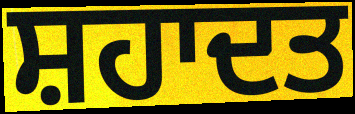
ਸ਼ਹਾਦਤ